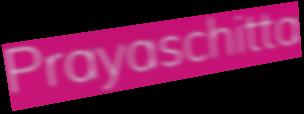
Prayaschitta